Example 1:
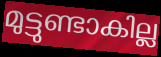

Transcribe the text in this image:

മുട്ടുണ്ടാകില്ല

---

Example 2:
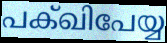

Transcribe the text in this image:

പക്ഖിപേയ്യ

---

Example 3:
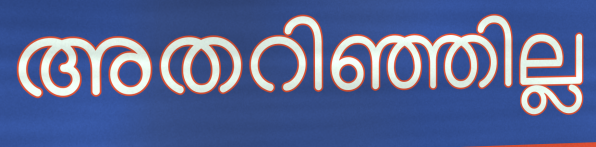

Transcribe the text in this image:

അതറിഞ്ഞില്ല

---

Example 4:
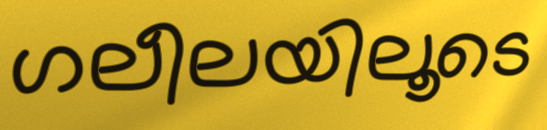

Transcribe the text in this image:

ഗലീലയിലൂടെ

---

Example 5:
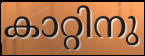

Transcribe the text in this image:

കാറ്റിനു